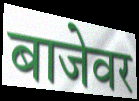
बाजेवर